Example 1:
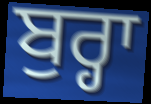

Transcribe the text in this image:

ਬੁਰ੍ਹਾ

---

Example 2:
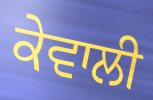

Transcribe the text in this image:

ਕੇਵਾਲੀ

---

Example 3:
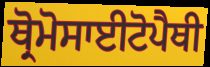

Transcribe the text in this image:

ਥ੍ਰੋਮੋਸਾਈਟੋਪੈਥੀ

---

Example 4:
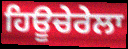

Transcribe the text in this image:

ਹਿਊਚੇਰੇਲਾ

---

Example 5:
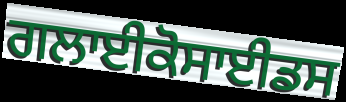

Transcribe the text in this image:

ਗਲਾਈਕੋਸਾਈਡਸ